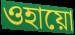
ওহায়ো